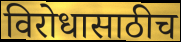
विरोधासाठीच